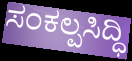
ಸಂಕಲ್ಪಸಿದ್ಧಿ